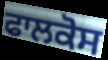
ਫਾਲਕੋਸ